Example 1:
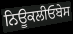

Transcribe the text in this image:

ਨਿਊਕਲੀਓਬੇਸ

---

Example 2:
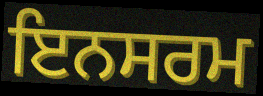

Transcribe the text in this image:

ਇਨਸਰਮ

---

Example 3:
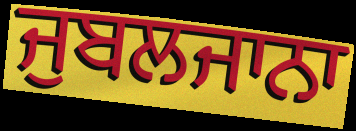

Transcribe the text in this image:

ਜੁਬਲਜਾਨਾ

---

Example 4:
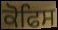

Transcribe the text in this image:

ਕੋਫਿਸ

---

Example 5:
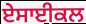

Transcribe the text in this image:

ਏਸਾਈਕਲ